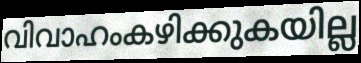
വിവാഹംകഴിക്കുകയില്ല